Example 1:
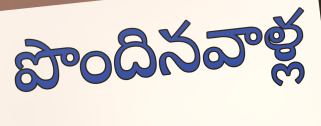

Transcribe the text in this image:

పొందినవాళ్ల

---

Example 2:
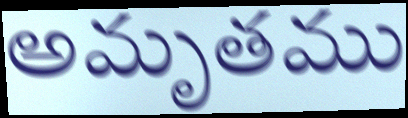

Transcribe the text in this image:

అమృతము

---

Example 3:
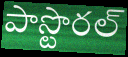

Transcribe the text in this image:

పాస్టొరల్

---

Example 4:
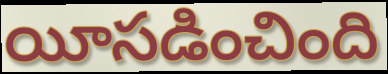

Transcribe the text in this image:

యీసడించింది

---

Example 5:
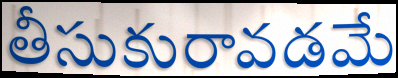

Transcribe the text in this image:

తీసుకురావడమే